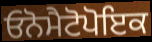
ਓਨੋਮੈਟੋਪੋਇਕ